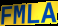
FMLA